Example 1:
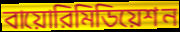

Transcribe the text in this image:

বায়োরিমিডিয়েশন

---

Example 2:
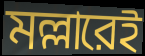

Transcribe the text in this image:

মল্লারেই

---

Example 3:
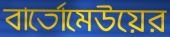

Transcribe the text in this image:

বার্তোমেউয়ের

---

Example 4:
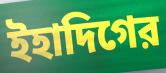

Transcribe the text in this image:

ইহাদিগের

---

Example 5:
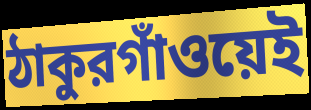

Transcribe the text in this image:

ঠাকুরগাঁওয়েই